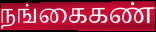
நங்கைகண்